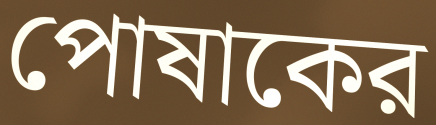
পোষাকের